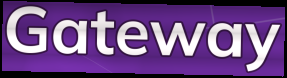
Gateway